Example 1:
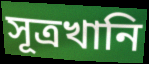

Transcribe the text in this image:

সূত্রখানি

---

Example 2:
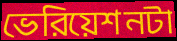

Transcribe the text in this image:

ভেরিয়েশনটা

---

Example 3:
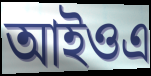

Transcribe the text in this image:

আইওএ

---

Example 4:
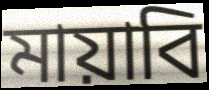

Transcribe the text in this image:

মায়াবি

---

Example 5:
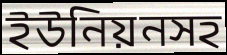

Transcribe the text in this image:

ইউনিয়নসহ